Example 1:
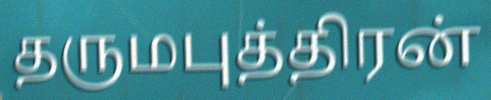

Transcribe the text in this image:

தருமபுத்திரன்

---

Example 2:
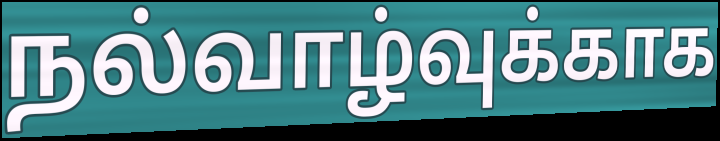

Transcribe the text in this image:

நல்வாழ்வுக்காக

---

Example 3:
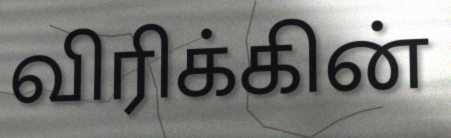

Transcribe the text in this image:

விரிக்கின்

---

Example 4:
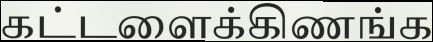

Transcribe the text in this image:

கட்டளைக்கிணங்க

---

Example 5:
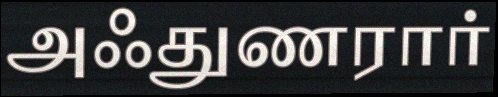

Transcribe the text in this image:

அஃதுணரார்